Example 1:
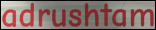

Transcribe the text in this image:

adrushtam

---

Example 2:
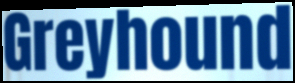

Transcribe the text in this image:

Greyhound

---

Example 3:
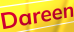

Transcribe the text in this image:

Dareen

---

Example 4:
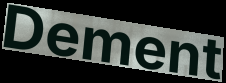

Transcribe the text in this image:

Dement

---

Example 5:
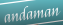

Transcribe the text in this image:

andaman